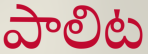
పాలిట